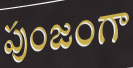
పుంజంగా